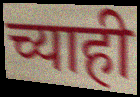
च्याही